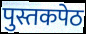
पुस्तकपेठ